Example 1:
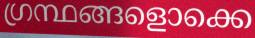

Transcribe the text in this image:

ഗ്രന്ഥങ്ങളൊക്കെ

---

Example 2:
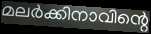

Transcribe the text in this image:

മലർക്കിനാവിന്റെ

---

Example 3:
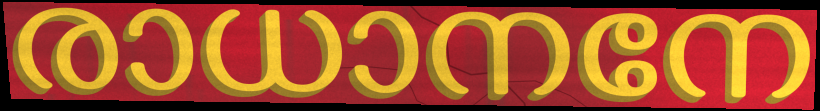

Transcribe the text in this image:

രാധാനനേ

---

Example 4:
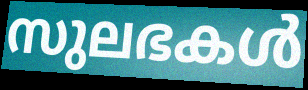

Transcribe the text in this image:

സുലഭകൾ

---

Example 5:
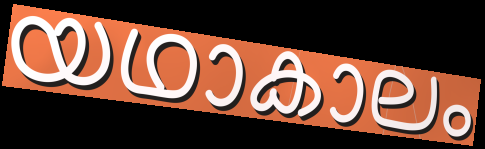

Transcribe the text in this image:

യഥാകാലം